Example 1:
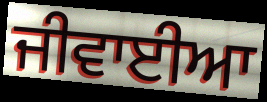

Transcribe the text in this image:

ਜੀਵਾਈਆ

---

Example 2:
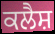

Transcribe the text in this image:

ਕਲੈਸ਼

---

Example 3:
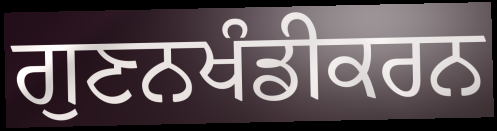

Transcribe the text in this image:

ਗੁਣਨਖੰਡੀਕਰਨ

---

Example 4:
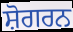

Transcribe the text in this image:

ਸ਼ੋਗਰਨ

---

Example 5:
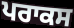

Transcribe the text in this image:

ਪਰਾਕਸ